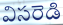
విసరెడి